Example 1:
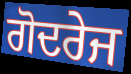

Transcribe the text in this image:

ਗੋਦਰੇਜ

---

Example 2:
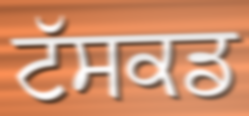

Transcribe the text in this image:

ਟੱਸਕਡ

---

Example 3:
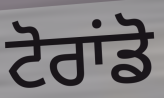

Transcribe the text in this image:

ਟੋਰਾਂਡੋ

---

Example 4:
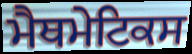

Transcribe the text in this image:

ਮੈਥਮੇਟਿਕਸ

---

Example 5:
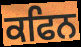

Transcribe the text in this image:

ਕਫਿਨ